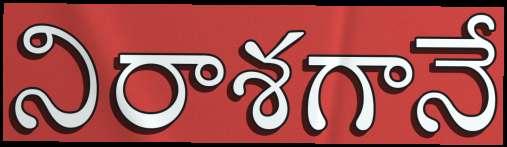
నిరాశగానే